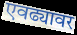
एवढ्यावर